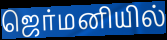
ஜெர்மனியில்